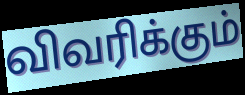
விவரிக்கும்